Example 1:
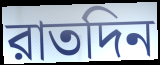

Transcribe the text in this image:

রাতদিন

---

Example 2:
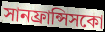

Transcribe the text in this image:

সানফ্রান্সিসকো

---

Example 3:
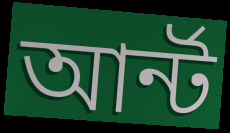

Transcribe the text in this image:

আর্ন্ট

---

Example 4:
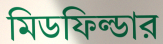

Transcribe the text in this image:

মিডফিল্ডার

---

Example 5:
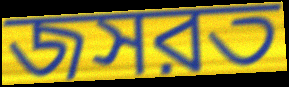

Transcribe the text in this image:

জসরত